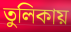
তুলিকায়